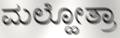
ಮಲ್ಹೋತ್ರಾ